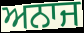
ਅਨਾਜ